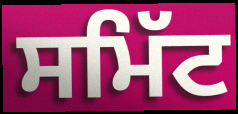
ਸਮਿੱਟ